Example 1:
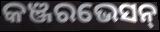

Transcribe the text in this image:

କଞ୍ଜରଭେସନ୍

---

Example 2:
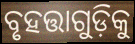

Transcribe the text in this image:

ବୃହତ୍ତାଗୁଡ଼ିକୁ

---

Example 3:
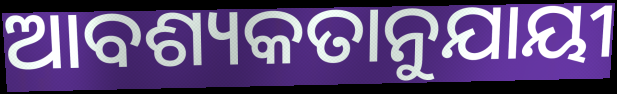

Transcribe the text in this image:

ଆବଶ୍ୟକତାନୁଯାୟୀ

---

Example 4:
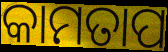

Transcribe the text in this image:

କାମତାପ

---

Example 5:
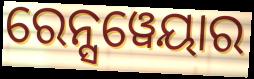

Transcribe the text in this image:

ରେନ୍ସୱେୟାର